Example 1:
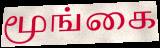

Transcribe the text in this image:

மூங்கை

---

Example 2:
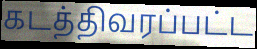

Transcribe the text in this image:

கடத்திவரப்பட்ட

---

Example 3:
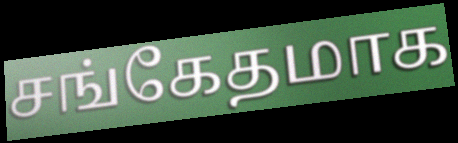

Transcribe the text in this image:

சங்கேதமாக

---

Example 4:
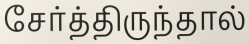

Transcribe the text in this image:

சேர்த்திருந்தால்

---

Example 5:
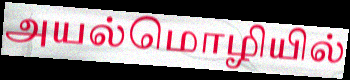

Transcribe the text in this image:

அயல்மொழியில்